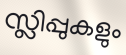
സ്ലിപ്പുകളും